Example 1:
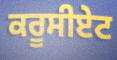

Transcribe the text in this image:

ਕਰੂਸੀਏਟ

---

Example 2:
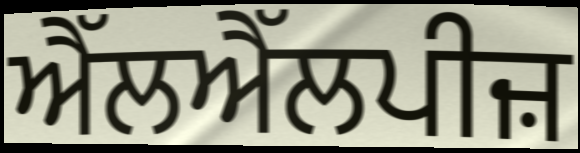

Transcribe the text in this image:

ਐੱਲਐੱਲਪੀਜ਼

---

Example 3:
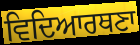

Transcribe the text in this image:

ਵਿਦਿਆਰਥਣਾ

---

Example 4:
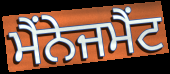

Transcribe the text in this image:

ਮੈਂਨੇਜਮੈਂਟ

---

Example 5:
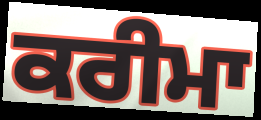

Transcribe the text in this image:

ਕਰੀਮਾ